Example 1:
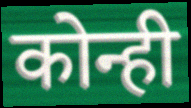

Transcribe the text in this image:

कोन्ही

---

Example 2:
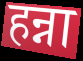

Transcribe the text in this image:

हन्ना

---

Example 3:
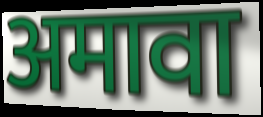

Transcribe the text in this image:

अमावा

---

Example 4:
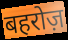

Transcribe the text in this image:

बहरोज़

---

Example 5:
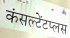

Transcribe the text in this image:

कंसल्टेंटप्लस